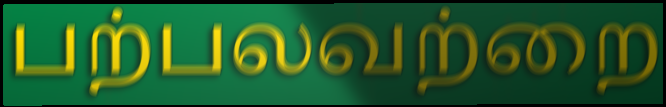
பற்பலவற்றை